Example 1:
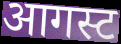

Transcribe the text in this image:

आगस्ट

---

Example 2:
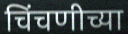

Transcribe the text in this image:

चिंचणीच्या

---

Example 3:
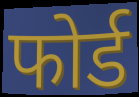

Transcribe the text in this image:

फोर्ड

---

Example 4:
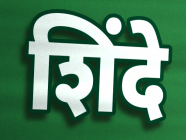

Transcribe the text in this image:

शिंदे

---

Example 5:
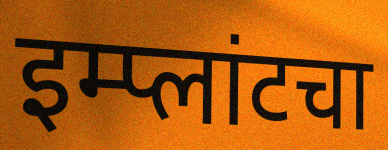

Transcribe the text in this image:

इम्प्लांटचा